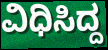
ವಿಧಿಸಿದ್ದ